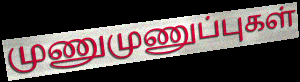
முணுமுணுப்புகள்